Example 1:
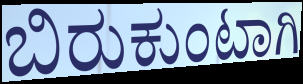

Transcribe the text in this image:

ಬಿರುಕುಂಟಾಗಿ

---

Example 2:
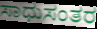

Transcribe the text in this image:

ಸಾಧುಸಂತರ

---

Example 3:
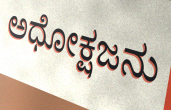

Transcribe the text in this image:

ಅಧೋಕ್ಷಜನು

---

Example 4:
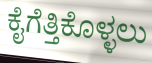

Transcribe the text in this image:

ಕೈಗೆತ್ತಿಕೊಳ್ಳಲು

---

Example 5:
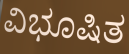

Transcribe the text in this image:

ವಿಭೂಷಿತ